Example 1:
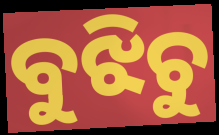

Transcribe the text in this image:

ବୁଝିଚୁ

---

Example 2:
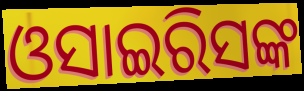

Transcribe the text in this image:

ଓସାଇରିସଙ୍କ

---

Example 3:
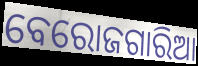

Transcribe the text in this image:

ବେରୋଜଗାରିଆ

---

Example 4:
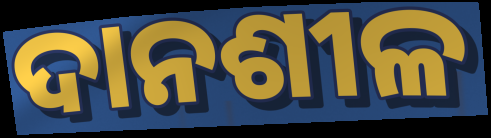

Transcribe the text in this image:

ଦାନଶୀଳ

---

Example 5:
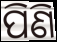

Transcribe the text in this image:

ପିଣି